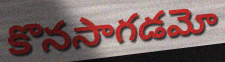
కొనసాగడమో